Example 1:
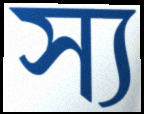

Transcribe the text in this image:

স্য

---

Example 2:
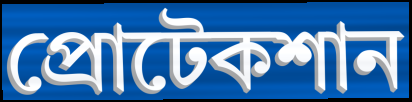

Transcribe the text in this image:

প্রোটেকশান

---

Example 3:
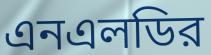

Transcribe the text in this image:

এনএলডির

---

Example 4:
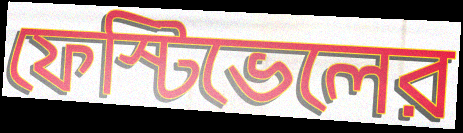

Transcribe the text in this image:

ফেস্টিভেলের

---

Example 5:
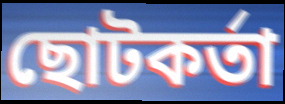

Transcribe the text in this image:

ছোটকর্তা